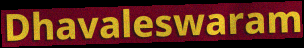
Dhavaleswaram